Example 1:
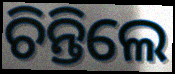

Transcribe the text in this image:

ଚିନ୍ତିଲେ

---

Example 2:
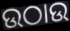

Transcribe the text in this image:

ଉଠାଉ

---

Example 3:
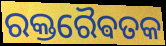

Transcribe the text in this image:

ରକ୍ତରୈଵତକ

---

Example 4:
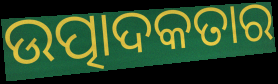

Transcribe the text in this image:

ଉତ୍ପାଦକତାର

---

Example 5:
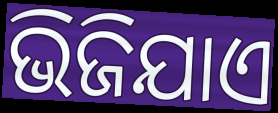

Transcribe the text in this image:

ଭିଜିଯାଏ